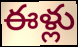
ఈళ్లు